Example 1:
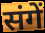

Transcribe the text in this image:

संगें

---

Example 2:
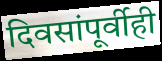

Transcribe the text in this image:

दिवसांपूर्वीही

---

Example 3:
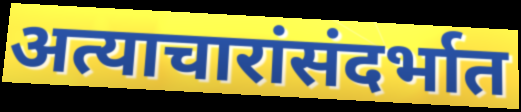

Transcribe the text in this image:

अत्याचारांसंदर्भात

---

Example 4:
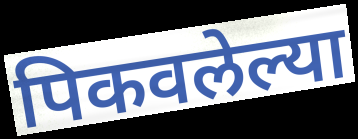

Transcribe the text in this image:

पिकवलेल्या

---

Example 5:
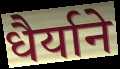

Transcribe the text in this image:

धैर्याने